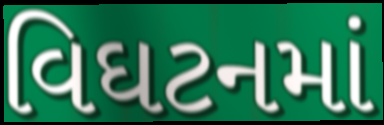
વિઘટનમાં